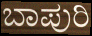
ಬಾಪುರಿ